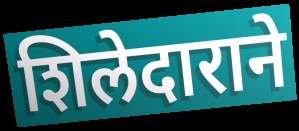
शिलेदाराने